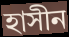
হাসীন